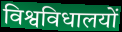
विश्वविधालयों